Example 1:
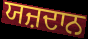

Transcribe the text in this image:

ਯਜ਼ਦਾਨ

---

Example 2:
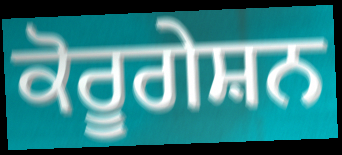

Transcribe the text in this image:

ਕੋਰੂਗੇਸ਼ਨ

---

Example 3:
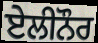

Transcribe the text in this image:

ਏਲੀਨੌਰ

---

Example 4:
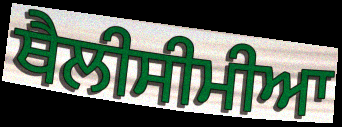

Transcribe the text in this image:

ਥੈਲੀਸੀਮੀਆ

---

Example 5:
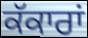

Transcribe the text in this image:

ਕੱਕਾਰਾਂ